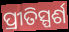
ପ୍ରୀତିସ୍ପର୍ଶ